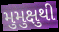
મુમુક્ષુથી